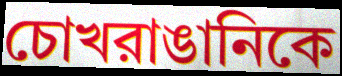
চোখরাঙানিকে